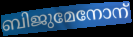
ബിജുമേനോന്